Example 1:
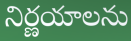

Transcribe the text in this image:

నిర్ణయాలను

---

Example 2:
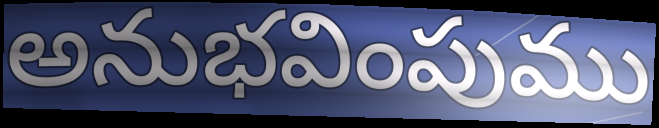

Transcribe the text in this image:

అనుభవింపుము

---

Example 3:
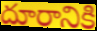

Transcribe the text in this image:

దూరానికి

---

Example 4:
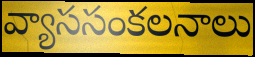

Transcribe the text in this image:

వ్యాససంకలనాలు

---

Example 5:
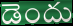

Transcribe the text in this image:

డెందు